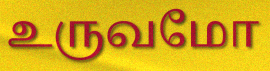
உருவமோ